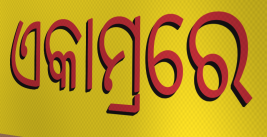
ଏକାମ୍ରରେ